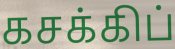
கசக்கிப்